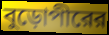
বুড়োপীরের